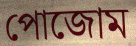
পোজোম